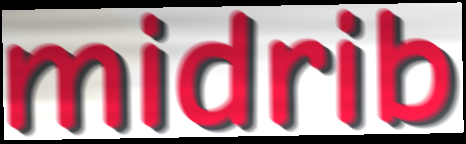
midrib